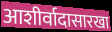
आशीर्वादासारखा